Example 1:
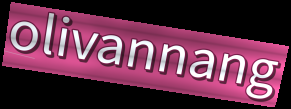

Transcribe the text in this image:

olivannang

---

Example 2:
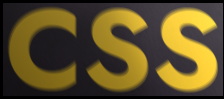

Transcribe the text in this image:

CSS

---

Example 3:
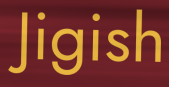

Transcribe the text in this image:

Jigish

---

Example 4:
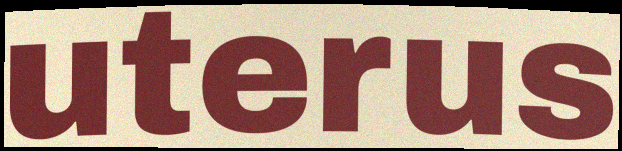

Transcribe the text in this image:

uterus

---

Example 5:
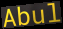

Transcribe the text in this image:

Abul